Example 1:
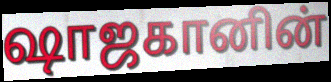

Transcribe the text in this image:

ஷாஜகானின்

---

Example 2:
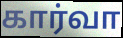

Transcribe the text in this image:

கார்வா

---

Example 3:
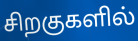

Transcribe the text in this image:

சிறகுகளில்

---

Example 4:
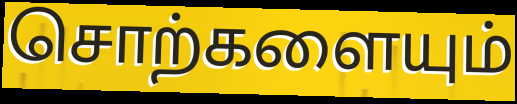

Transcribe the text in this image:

சொற்களையும்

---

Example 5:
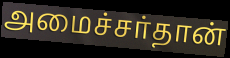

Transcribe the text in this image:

அமைச்சர்தான்